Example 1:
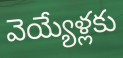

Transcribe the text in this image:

వెయ్యేళ్లకు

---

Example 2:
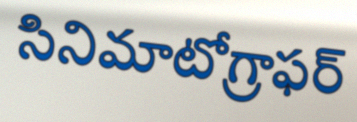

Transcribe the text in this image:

సినిమాటోగ్రాఫర్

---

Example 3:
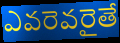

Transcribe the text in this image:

ఎవరెవరైతే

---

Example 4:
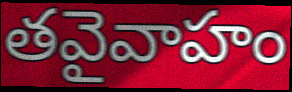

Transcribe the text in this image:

తవైవాహం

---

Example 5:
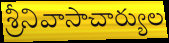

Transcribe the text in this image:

శ్రీనివాసాచార్యుల